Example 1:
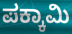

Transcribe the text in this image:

ಪಕ್ಕಾಮಿ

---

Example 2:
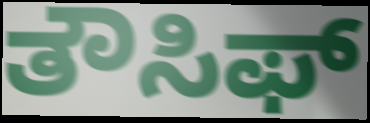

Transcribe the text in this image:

ತೌಸಿಫ್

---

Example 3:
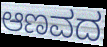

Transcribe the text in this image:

ಆಣವದ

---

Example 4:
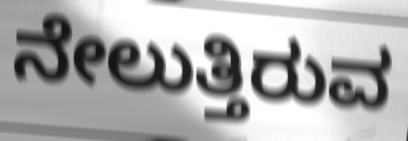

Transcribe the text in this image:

ನೇಲುತ್ತಿರುವ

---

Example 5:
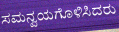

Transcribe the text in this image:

ಸಮನ್ವಯಗೊಳಿಸಿದರು